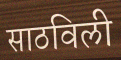
साठविली